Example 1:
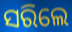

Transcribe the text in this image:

ସରିଲେ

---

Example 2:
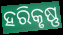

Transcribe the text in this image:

ହରିକୃଷ୍ଣ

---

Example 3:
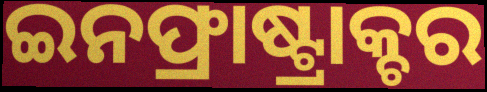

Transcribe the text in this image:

ଇନଫ୍ରାଷ୍ଟ୍ରାକ୍ଚର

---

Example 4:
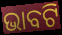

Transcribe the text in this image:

ଭାବଟି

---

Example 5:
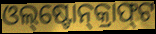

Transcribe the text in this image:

ଓଲ୍‌ଷ୍ଟୋନ୍‌କ୍ରାଫ୍‌ଟ